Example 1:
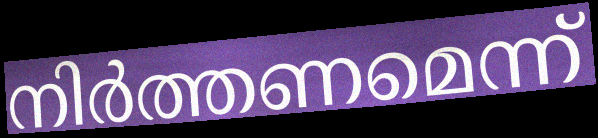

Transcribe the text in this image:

നിർത്തണമെന്ന്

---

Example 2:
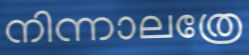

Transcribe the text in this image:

നിന്നാലത്രേ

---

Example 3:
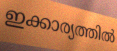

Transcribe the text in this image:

ഇക്കാര്യത്തിൽ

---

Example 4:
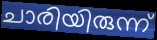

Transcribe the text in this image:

ചാരിയിരുന്ന്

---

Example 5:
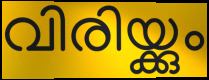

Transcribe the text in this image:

വിരിയ്ക്കും